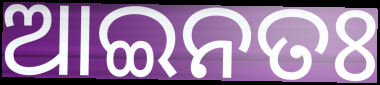
ଆଇନତଃ